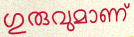
ഗുരുവുമാണ്